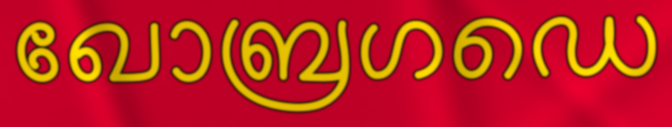
ഖോബ്രഗഡെ